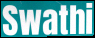
Swathi